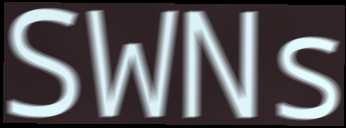
SWNs